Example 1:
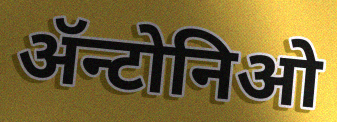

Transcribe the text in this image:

ॲन्टोनिओ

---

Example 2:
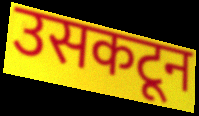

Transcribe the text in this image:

उसकटून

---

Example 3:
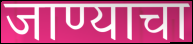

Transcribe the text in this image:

जाण्याचा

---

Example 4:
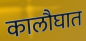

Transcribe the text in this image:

कालौघात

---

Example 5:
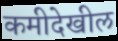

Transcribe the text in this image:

कमीदेखील